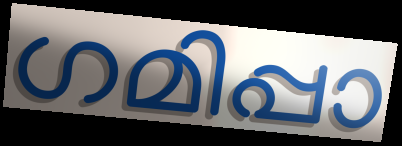
ഗമിപ്പാ